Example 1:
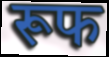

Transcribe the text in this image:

रूफ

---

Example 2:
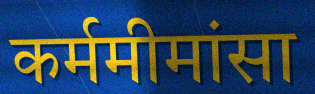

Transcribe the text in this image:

कर्ममीमांसा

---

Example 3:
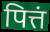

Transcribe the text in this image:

पित्तं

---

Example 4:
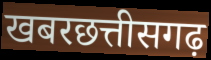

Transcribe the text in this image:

खबरछत्तीसगढ़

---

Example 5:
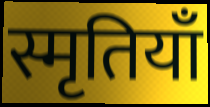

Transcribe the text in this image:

स्मृतियाँ